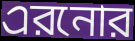
এরনোর